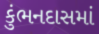
કુંભનદાસમાં